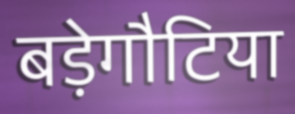
बड़ेगौटिया